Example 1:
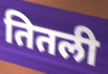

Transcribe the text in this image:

तितली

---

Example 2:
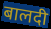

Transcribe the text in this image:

बालदी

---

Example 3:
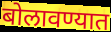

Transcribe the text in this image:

बोलावण्यात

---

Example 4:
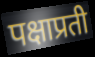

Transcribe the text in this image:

पक्षाप्रती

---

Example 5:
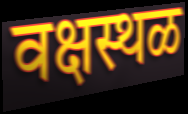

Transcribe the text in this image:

वक्षस्थळ